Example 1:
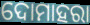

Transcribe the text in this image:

ଦୋମାହରା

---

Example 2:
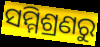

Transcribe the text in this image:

ସମ୍ମିଶ୍ରଣରୁ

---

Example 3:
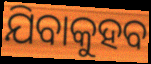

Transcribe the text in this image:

ଯିବାକୁହବ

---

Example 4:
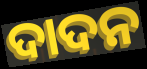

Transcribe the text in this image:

ଦାଦନ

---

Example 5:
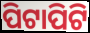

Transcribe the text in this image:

ପିଟାପିଟି